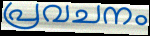
പ്രവചനം